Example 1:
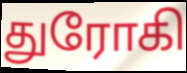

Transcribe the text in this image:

துரோகி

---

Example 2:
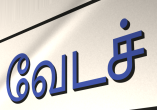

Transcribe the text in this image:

வேடச்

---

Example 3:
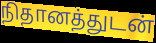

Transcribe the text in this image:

நிதானத்துடன்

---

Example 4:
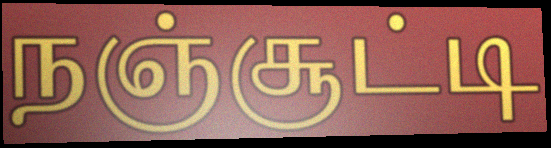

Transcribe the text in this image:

நஞ்சூட்டி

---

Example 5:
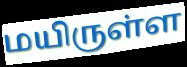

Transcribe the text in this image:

மயிருள்ள